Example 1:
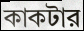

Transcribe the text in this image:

কাকটার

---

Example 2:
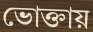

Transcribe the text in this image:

ভোক্তায়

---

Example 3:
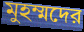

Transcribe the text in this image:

মুহম্মদের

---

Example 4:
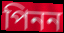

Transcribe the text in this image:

পিনন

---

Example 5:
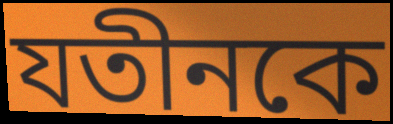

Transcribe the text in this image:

যতীনকে